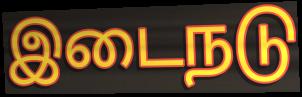
இடைநடு